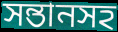
সন্তানসহ